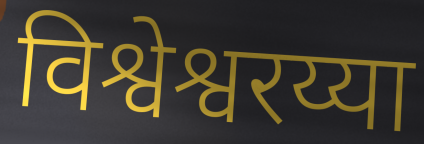
विश्वेश्वरय्या